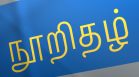
நூறிதழ்